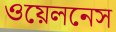
ওয়েলনেস